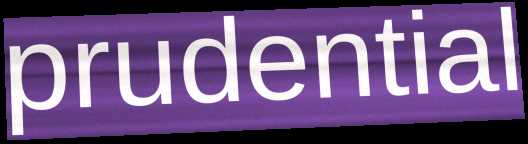
prudential